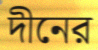
দীনের